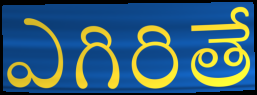
ఎగిరితే